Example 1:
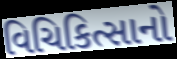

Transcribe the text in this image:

વિચિકિત્સાનો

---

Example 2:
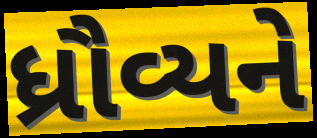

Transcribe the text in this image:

ધ્રૌવ્યને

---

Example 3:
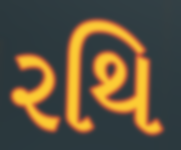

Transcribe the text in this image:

રથિ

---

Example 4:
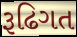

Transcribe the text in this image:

રૂઢિગત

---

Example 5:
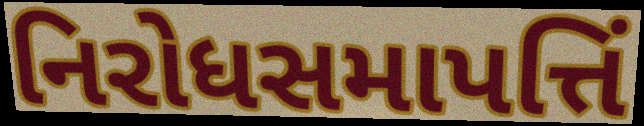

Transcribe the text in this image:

નિરોધસમાપત્તિં